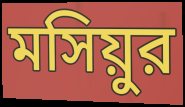
মসিয়ুর